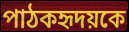
পাঠকহৃদয়কে